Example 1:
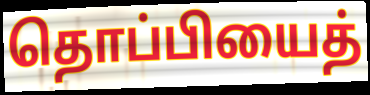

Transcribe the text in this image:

தொப்பியைத்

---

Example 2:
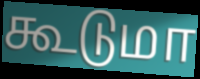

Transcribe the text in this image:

கூடுமா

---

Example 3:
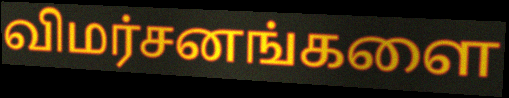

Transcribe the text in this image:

விமர்சனங்களை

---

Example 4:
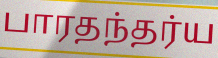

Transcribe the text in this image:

பாரதந்தர்ய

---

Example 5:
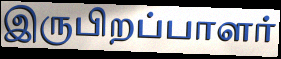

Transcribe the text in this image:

இருபிறப்பாளர்